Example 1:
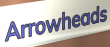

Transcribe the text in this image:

Arrowheads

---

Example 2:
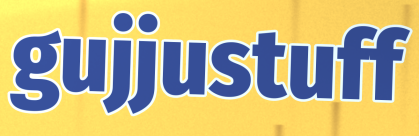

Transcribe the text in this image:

gujjustuff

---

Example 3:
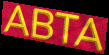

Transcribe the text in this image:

ABTA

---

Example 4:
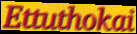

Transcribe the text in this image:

Ettuthokai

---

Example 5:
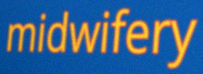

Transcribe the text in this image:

midwifery